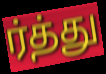
ர்த்து